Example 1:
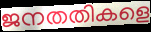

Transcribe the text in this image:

ജനതതികളെ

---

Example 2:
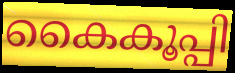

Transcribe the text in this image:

കൈകൂപ്പി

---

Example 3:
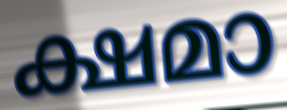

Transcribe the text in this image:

ക്ഷമാ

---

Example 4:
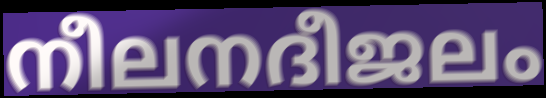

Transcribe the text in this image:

നീലനദീജലം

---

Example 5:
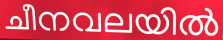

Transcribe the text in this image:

ചീനവലയിൽ